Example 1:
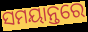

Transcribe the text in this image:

ସମୟାନ୍ତରେ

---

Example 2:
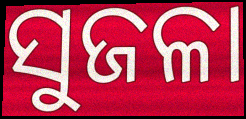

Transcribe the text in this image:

ସୁଜଳା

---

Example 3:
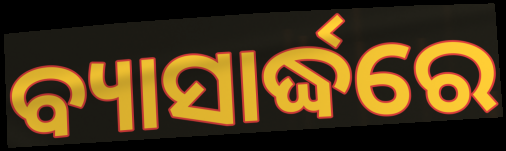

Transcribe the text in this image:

ବ୍ୟାସାର୍ଦ୍ଧରେ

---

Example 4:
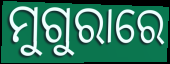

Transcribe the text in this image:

ମୁଗୁରାରେ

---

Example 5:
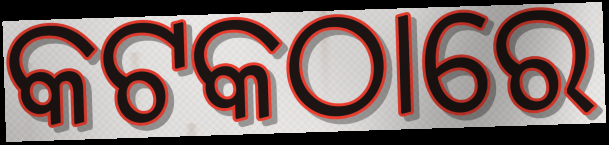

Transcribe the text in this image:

କଟକଠାରେ